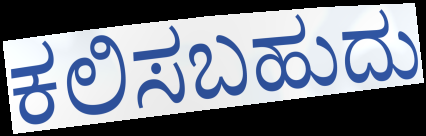
ಕಲಿಸಬಹುದು